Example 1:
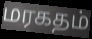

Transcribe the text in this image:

மரகதம்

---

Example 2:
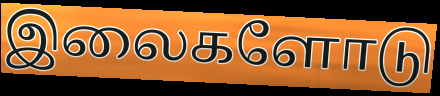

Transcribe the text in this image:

இலைகளோடு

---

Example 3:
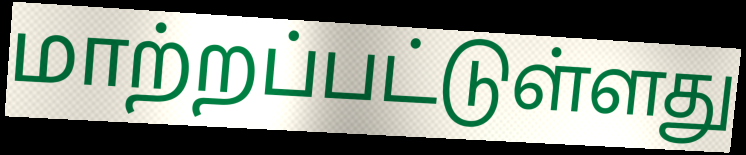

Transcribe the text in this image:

மாற்றப்பட்டுள்ளது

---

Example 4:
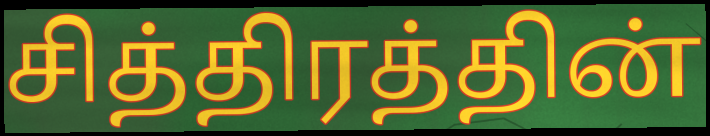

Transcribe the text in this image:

சித்திரத்தின்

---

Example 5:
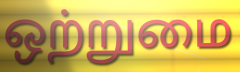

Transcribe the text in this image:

ஒற்றுமை